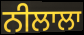
ਨੀਲਾਲਾ